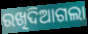
ରଖିଦିଆଗଲା